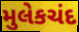
મુલેકચંદ